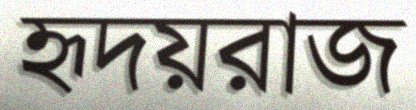
হৃদয়রাজ